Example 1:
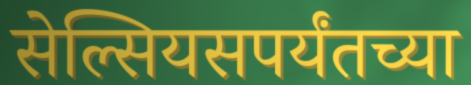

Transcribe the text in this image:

सेल्सियसपर्यंतच्या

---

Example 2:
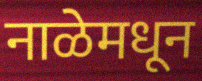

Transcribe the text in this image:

नाळेमधून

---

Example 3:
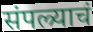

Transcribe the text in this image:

संपल्याचं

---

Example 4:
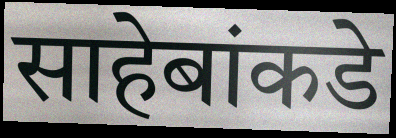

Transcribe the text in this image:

साहेबांकडे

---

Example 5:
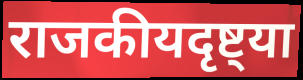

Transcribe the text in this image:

राजकीयदृष्ट्या